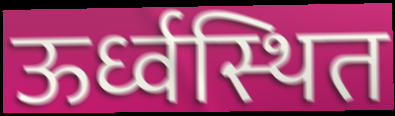
ऊर्ध्वस्थित